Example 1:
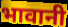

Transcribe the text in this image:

भावानी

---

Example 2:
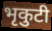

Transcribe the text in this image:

भृकुटी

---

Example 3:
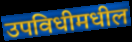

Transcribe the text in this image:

उपविधीमधील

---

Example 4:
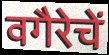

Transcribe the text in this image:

वगैरेचें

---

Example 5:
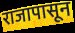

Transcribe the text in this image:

राजापासून